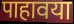
पाहावया